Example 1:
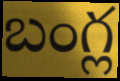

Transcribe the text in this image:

బంగ్ల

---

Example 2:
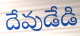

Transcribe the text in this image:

దేవుడేడి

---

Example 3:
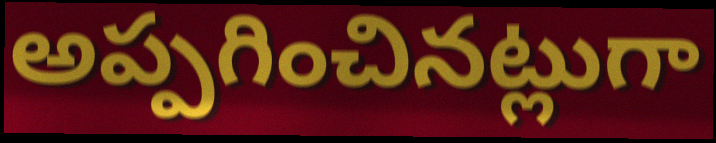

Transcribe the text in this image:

అప్పగించినట్లుగా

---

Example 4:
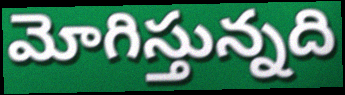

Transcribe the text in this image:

మోగిస్తున్నది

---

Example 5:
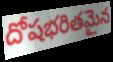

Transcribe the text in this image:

దోషభరితమైన